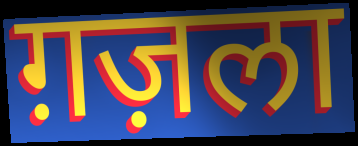
ग़ज़ला